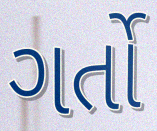
ગર્તો